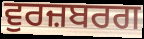
ਵੁਰਜ਼ਬਰਗ